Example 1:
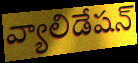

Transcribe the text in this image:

వ్యాలిడేషన్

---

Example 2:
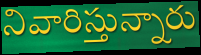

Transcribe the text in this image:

నివారిస్తున్నారు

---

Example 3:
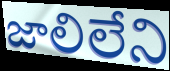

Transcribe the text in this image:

జాలిలేని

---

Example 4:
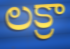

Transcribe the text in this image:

లక్రా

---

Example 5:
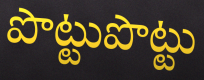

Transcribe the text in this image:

పొట్టుపొట్టు